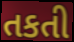
તકતી